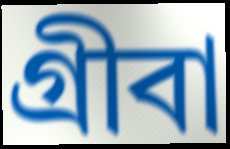
গ্রীবা